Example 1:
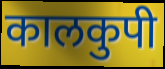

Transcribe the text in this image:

कालकुपी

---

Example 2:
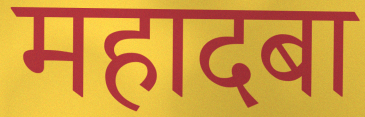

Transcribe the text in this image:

महादबा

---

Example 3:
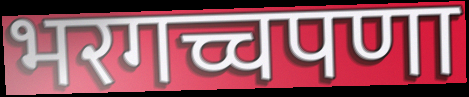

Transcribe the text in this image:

भरगच्चपणा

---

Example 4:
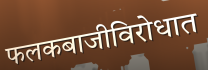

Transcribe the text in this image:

फलकबाजीविरोधात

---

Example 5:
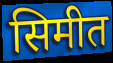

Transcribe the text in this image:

सिमीत